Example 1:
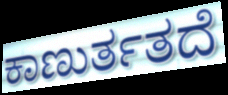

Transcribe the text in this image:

ಕಾಣುರ್ತತದೆ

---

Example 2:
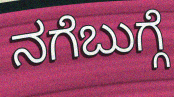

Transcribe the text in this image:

ನಗೆಬುಗ್ಗೆ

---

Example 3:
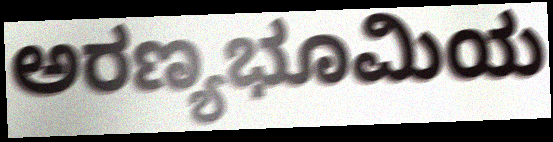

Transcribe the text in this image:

ಅರಣ್ಯಭೂಮಿಯ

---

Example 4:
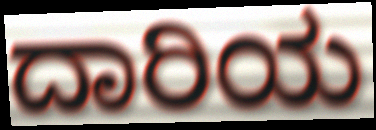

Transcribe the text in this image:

ದಾರಿಯ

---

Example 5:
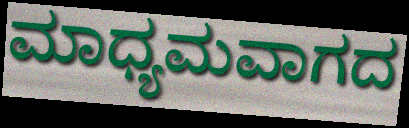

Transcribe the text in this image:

ಮಾಧ್ಯಮವಾಗದ